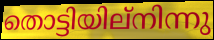
തൊട്ടിയില്നിന്നു